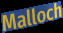
Malloch